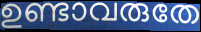
ഉണ്ടാവരുതേ